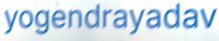
yogendrayadav